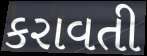
કરાવતી